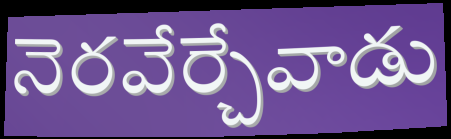
నెరవేర్చేవాడు